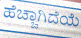
ಹೆಚ್ಚಾಗಿದೆಯೆ